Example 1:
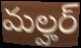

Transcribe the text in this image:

మల్హర్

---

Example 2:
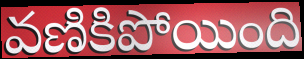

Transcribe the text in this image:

వణికిపోయింది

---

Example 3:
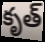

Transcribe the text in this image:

కృత్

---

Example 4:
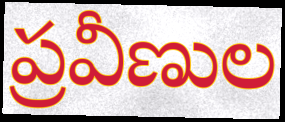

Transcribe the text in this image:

ప్రవీణుల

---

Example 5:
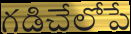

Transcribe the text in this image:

గడిచేలోపే